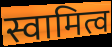
स्वामित्व